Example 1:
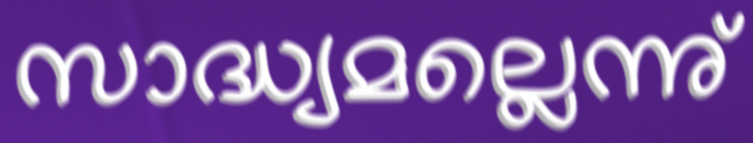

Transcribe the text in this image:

സാദ്ധ്യമല്ലെന്നു്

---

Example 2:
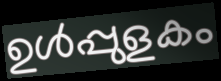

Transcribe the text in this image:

ഉൾപ്പുളകം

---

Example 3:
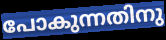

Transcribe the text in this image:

പോകുന്നതിനു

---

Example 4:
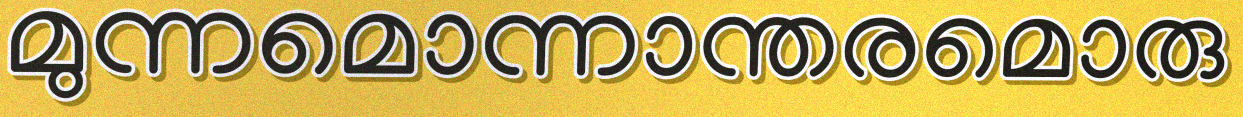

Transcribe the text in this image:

മുന്നമൊന്നാന്തരമൊരു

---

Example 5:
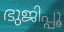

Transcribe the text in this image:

ഭുജിപ്പൂ